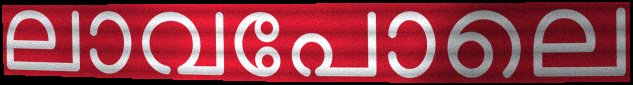
ലാവപോലെ